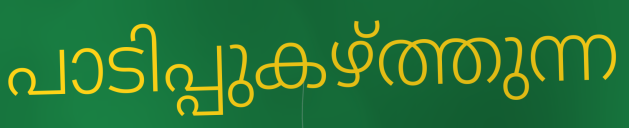
പാടിപ്പുകഴ്ത്തുന്ന